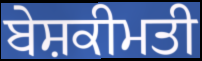
ਬੇਸ਼ਕੀਮਤੀ